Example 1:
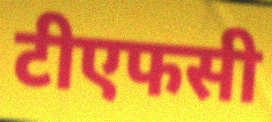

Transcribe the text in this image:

टीएफसी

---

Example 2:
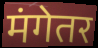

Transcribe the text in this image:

मंगेतर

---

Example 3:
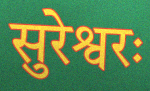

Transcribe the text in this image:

सुरेश्वरः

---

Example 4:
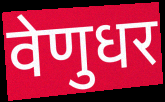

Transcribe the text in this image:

वेणुधर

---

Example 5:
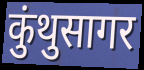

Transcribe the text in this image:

कुंथुसागर